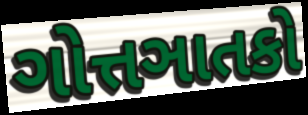
ગોત્તઞાતકો